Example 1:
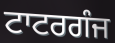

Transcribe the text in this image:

ਟਾਟਰਗੰਜ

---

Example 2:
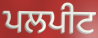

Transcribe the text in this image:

ਪਲਪੀਟ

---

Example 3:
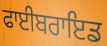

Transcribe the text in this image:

ਫਾਈਬਰਾਇਡ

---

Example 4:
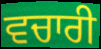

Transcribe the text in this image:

ਵਚਾਰੀ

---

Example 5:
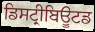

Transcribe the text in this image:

ਡਿਸਟ੍ਰੀਬਿਊਟਡ